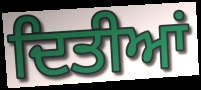
ਦਿਤੀਆਂ